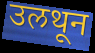
उलथून